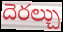
దెరల్చు